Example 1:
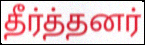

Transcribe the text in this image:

தீர்த்தனர்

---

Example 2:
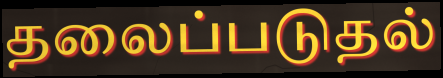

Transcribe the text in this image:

தலைப்படுதல்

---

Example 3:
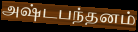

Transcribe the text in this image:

அஷ்டபந்தனம்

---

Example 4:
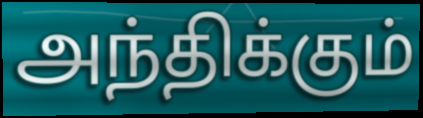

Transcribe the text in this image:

அந்திக்கும்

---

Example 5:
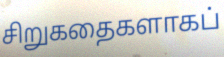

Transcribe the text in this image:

சிறுகதைகளாகப்